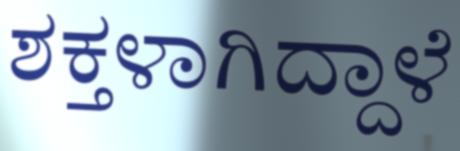
ಶಕ್ತಳಾಗಿದ್ದಾಳೆ